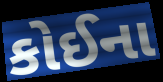
કોઈના